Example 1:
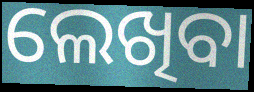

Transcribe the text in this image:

ଲେଖିବା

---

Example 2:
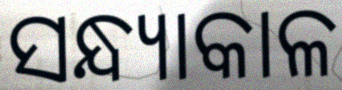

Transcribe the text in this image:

ସନ୍ଧ୍ୟାକାଳ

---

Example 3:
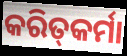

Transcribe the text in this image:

କରିତ୍‍କର୍ମା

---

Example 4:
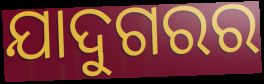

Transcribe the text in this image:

ଯାଦୁଗରର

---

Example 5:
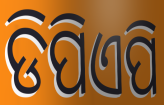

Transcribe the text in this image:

ଡିପିଏପି